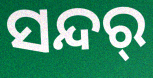
ସନ୍ଦର୍